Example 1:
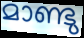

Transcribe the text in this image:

മാണ്ടു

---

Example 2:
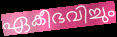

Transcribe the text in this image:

ഏകീഭവിച്ചും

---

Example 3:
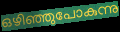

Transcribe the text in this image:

ഒഴിഞ്ഞുപോകുന്നു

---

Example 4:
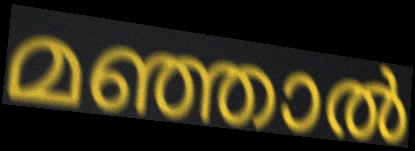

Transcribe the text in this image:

മഞ്ഞാൽ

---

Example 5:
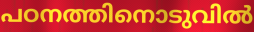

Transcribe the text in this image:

പഠനത്തിനൊടുവിൽ